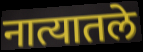
नात्यातले